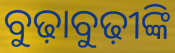
ବୁଢ଼ାବୁଢ଼ୀଙ୍କି